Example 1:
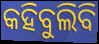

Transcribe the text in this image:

କହିବୁଲିବି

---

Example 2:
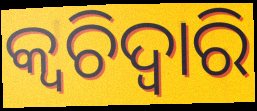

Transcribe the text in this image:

କ୍ଵଚିଦ୍ୱାରି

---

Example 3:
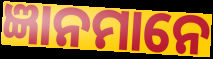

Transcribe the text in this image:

ଜ୍ଞାନମାନେ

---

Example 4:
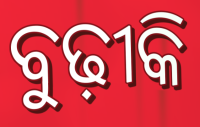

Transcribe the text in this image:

ବୁଢ଼ୀକି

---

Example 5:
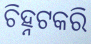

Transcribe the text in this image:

ଚିହ୍ନଟକରି